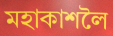
মহাকাশলৈ